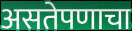
असतेपणाचा